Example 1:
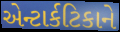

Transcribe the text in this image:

એન્ટાર્કટિકાને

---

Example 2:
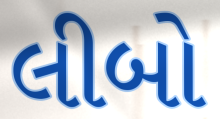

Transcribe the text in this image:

લીબો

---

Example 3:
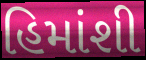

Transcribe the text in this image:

હિમાંશી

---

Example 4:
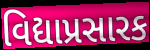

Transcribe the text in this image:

વિદ્યાપ્રસારક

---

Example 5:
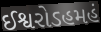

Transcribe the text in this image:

ઈશ્વરોઽહમહં